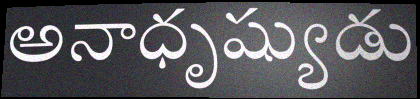
అనాధృష్యుడు